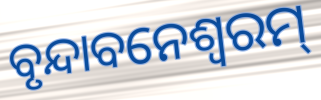
ବୃନ୍ଦାବନେଶ୍ୱରମ୍